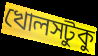
খোলসটুকু